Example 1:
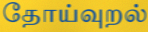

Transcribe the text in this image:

தோய்வுறல்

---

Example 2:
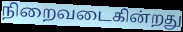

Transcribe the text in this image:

நிறைவடைகின்றது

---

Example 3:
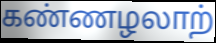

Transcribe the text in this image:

கண்ணழலாற்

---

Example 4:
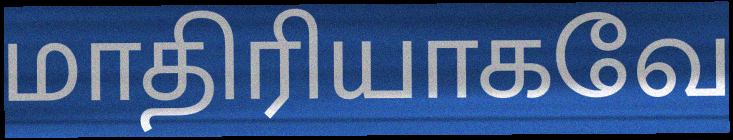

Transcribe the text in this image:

மாதிரியாகவே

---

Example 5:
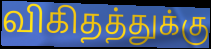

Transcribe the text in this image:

விகிதத்துக்கு